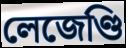
লেজেণ্ডি